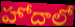
హోదాలో